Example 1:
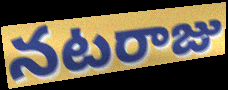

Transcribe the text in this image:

నటరాజు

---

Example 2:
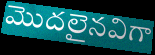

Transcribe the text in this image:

మొదలైనవిగా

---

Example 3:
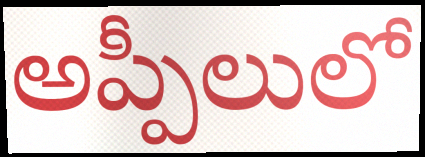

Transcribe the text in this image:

అప్పీలులో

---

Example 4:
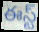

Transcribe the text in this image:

ఈస్ట్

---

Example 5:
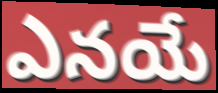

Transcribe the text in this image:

ఎనయే